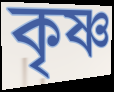
কৃষ্ণ